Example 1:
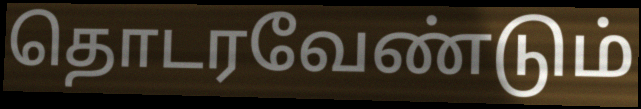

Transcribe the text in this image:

தொடரவேண்டும்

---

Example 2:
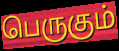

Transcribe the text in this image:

பெருகும்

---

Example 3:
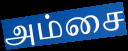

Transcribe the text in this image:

அம்சை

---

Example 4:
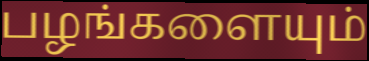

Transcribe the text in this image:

பழங்களையும்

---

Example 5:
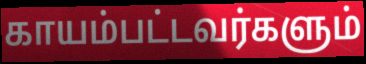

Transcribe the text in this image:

காயம்பட்டவர்களும்